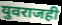
युवराजही